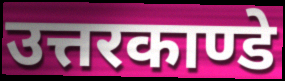
उत्तरकाण्डे